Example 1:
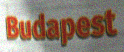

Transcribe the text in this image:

Budapest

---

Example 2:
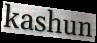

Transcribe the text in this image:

kashun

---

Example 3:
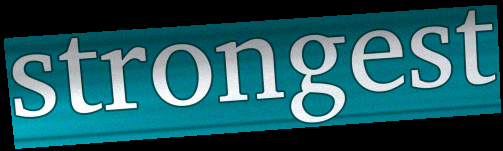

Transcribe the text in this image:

strongest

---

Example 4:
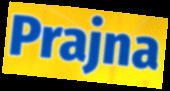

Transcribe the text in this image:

Prajna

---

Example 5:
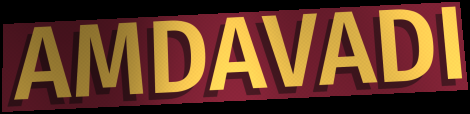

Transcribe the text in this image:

AMDAVADI